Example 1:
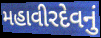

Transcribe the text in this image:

મહાવીરદેવનું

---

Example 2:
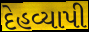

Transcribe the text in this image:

દેહવ્યાપી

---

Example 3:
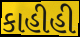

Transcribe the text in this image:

કાહીહી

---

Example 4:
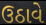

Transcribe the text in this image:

ઉઠાવે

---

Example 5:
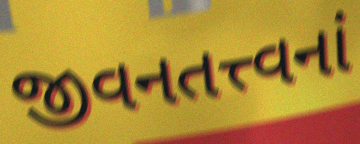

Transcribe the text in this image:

જીવનતત્ત્વનાં